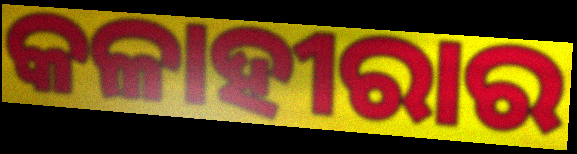
କଳାହୀରାର